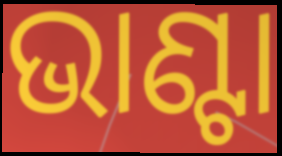
ଭାଣ୍ଟା